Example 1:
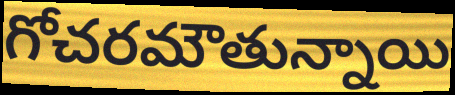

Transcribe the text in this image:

గోచరమౌతున్నాయి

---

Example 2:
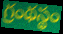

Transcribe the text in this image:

గ్రంథస్థం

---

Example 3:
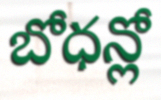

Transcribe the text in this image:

బోధన్లో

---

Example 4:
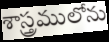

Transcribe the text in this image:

శాస్త్రములోను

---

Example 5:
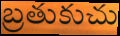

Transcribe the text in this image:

బ్రతుకుచు